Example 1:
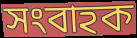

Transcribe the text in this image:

সংবাহক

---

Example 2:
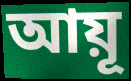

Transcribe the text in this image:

আয়ূ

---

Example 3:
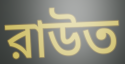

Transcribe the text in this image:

রাউত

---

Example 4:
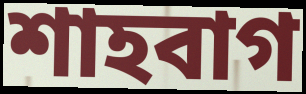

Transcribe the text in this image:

শাহবাগ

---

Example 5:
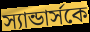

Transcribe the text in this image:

স্যান্ডার্সকে